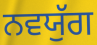
ਨਵਯੁੱਗ